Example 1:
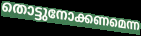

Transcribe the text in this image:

തൊട്ടുനോക്കണമെന്ന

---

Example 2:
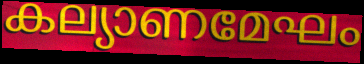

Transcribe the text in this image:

കല്യാണമേഘം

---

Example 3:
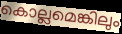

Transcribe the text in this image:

കൊല്ലമെങ്കിലും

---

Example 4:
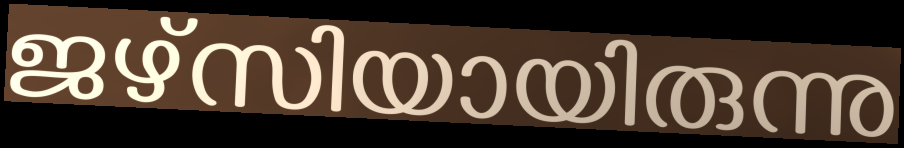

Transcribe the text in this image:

ജഴ്സിയായിരുന്നു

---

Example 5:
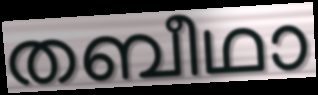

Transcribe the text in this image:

തബീഥാ